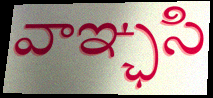
వాఞ్ఛసి